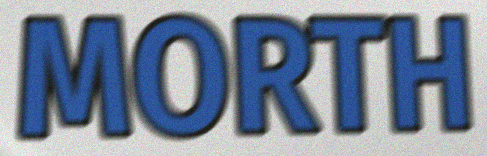
MORTH